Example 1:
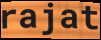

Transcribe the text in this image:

rajat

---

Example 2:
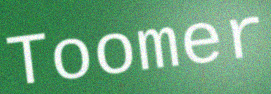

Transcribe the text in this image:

Toomer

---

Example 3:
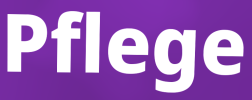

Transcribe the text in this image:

Pflege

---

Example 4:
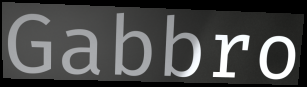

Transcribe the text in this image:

Gabbro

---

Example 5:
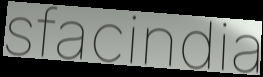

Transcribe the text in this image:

sfacindia